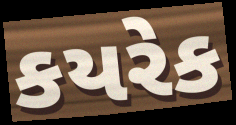
કયરેક